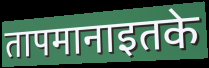
तापमानाइतके